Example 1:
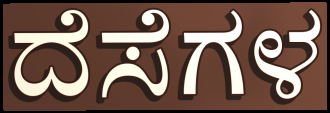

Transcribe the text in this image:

ದೆಸೆಗಳ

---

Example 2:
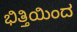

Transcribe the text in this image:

ಭಿತ್ತಿಯಿಂದ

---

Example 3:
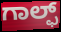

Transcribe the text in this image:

ಗಾಲ್ಫ್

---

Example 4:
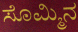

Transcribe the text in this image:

ಸೊಮ್ಮಿನ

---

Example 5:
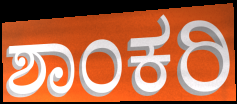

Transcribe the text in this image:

ಶಾಂಕರಿ